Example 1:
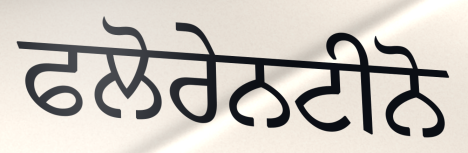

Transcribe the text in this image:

ਫਲੋਰੇਨਟੀਨੋ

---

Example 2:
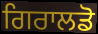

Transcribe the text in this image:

ਗਿਰਾਲਡੋ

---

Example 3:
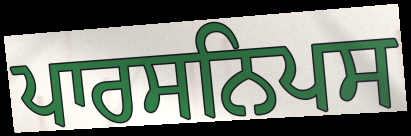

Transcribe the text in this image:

ਪਾਰਸਨਿਪਸ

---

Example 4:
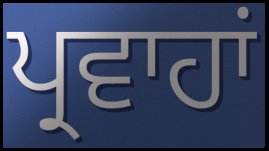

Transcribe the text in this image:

ਪ੍ਰਵਾਹਾਂ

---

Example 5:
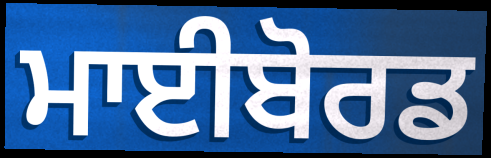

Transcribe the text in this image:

ਮਾਈਬੋਰਡ